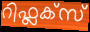
റിഫ്ലക്സ്